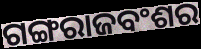
ଗଙ୍ଗରାଜବଂଶର